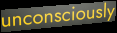
unconsciously